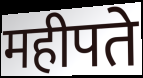
महीपते